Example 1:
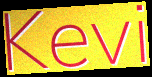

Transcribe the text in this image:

Kevi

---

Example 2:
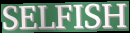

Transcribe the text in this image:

SELFISH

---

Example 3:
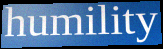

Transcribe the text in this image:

humility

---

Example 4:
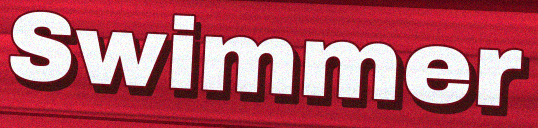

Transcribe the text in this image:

Swimmer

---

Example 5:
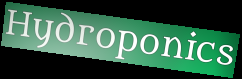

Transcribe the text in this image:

Hydroponics